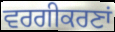
ਵਰਗੀਕਰਣਾਂ